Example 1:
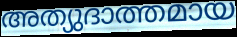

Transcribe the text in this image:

അത്യുദാത്തമായ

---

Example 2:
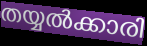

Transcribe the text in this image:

തയ്യൽക്കാരി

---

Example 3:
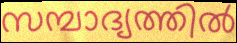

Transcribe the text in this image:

സമ്പാദ്യത്തിൽ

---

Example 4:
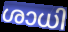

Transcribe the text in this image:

ശാധി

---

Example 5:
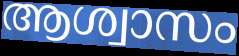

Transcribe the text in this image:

ആശ്വാസം